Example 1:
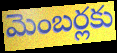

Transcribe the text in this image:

మెంబర్లకు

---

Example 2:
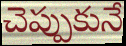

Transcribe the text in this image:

చెప్పుకునే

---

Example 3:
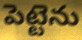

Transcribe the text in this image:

పెట్టెను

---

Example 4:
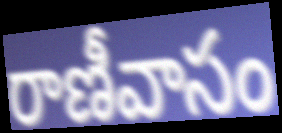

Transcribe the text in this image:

రాణీవాసం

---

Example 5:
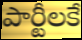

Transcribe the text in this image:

పార్టీలకే